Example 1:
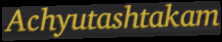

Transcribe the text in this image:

Achyutashtakam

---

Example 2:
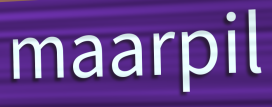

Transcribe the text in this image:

maarpil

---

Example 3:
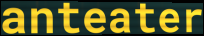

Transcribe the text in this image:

anteater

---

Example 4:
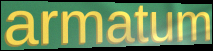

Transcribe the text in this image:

armatum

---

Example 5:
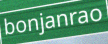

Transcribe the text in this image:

bonjanrao